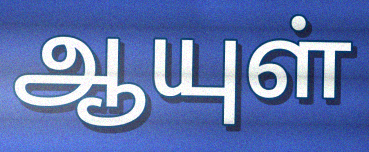
ஆயுள்